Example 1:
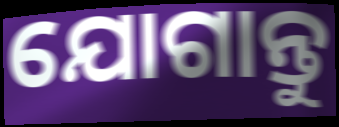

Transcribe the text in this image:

ଯୋଗାନ୍ତୁ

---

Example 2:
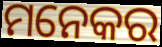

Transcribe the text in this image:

ମନେକର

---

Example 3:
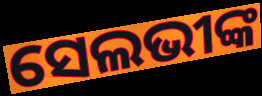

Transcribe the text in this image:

ସେଲଭୀଙ୍କ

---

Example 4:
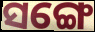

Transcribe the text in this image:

ସଙ୍ଗେ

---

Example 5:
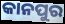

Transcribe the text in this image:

କାନପୁର